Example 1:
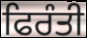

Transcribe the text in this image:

ਫਿਰੰਤੀ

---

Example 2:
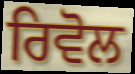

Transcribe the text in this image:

ਰਿਵੋਲ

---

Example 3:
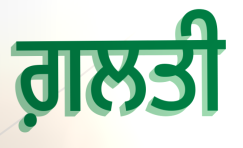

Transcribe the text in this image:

ਗ਼ਲਤੀ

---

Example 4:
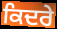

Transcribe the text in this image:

ਕਿਦਰੇ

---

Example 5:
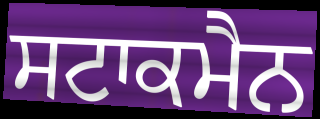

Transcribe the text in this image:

ਸਟਾਕਮੈਨ